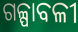
ଗଳ୍ପାବଳୀ